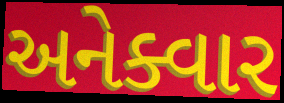
અનેક્વાર